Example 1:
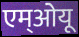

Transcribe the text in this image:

एम्ओयू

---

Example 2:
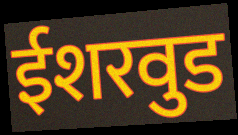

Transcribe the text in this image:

ईशरवुड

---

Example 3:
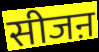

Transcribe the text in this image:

सीजऩ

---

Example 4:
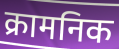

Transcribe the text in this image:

क्रामनिक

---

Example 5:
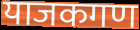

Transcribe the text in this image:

याजकगण